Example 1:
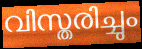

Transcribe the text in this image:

വിസ്തരിച്ചും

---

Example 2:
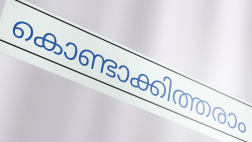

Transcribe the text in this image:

കൊണ്ടാക്കിത്തരാം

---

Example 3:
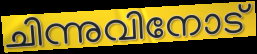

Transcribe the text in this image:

ചിന്നുവിനോട്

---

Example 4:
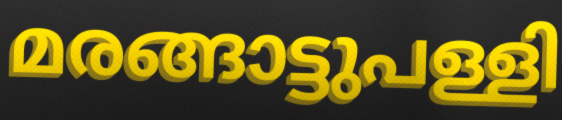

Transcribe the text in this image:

മരങ്ങാട്ടുപള്ളി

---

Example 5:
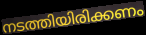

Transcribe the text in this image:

നടത്തിയിരിക്കണം